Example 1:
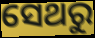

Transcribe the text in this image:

ସେଥରୁ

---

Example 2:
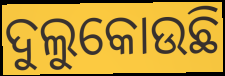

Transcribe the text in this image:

ଦୁଲୁକୋଉଛି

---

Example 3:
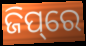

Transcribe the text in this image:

ଜିପ୍‌ରେ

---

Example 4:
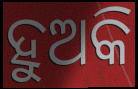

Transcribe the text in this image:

ହୁଅକି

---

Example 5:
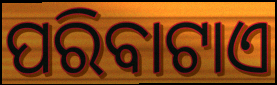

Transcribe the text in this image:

ପରିବାଟାଏ